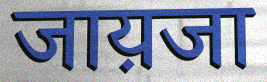
जाय़जा